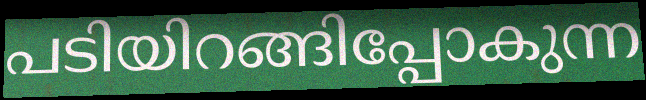
പടിയിറങ്ങിപ്പോകുന്ന